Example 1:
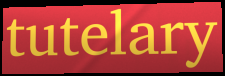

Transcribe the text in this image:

tutelary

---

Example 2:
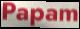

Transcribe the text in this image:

Papam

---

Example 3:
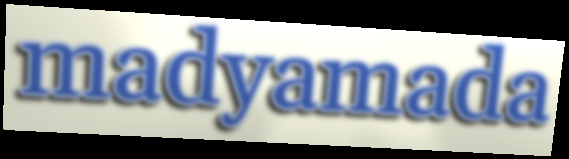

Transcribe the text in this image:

madyamada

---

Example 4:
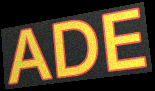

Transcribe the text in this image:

ADE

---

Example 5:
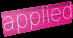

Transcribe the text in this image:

applied